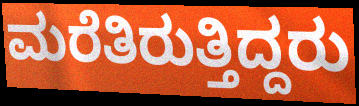
ಮರೆತಿರುತ್ತಿದ್ದರು